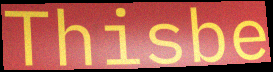
Thisbe